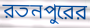
রতনপুরের